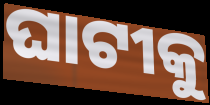
ଘାଟୀକୁ